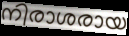
നിരാശരായ